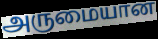
அருமையான